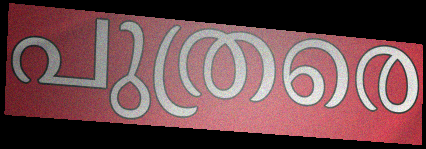
പുത്രരെ